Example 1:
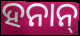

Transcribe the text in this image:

ହନାନ୍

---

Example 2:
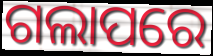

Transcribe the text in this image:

ଗଲାପରେ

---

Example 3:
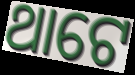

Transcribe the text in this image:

ଥାଟେ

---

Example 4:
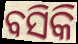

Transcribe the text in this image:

ବସିକି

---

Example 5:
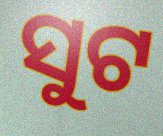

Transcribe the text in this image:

ସୁଟ